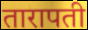
तारापती